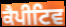
ਕੈਪੀਟਿਵ